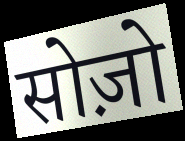
सोज़ो